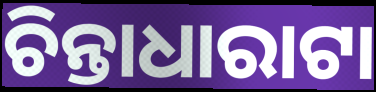
ଚିନ୍ତାଧାରାଟା